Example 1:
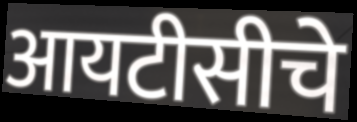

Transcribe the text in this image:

आयटीसीचे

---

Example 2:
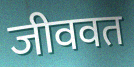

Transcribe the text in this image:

जीववत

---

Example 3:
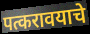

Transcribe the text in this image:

पत्करावयाचे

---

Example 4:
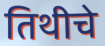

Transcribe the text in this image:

तिथीचे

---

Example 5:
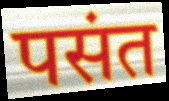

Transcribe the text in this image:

पसंत